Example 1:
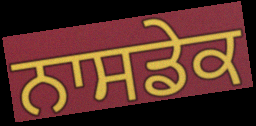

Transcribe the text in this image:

ਨਾਸਡੇਕ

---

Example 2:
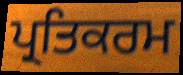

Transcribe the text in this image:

ਪ੍ਰਤਿਕਰਮ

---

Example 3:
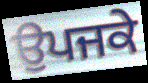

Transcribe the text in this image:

ਉਪਜਕੇ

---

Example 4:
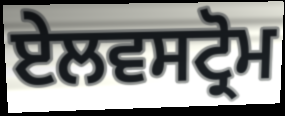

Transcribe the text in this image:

ਏਲਵਸਟ੍ਰੋਮ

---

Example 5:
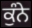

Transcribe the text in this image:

ਕੁੰਨੇ